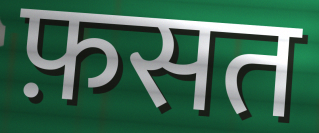
फ़सत